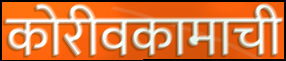
कोरीवकामाची